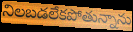
నిలబడలేకపోతున్నాను